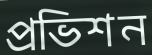
প্রভিশন